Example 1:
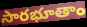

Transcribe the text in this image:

సారభూతాం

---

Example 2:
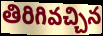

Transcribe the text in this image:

తిరిగివచ్చిన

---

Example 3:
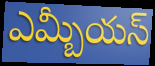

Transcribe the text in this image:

ఎమ్బీయస్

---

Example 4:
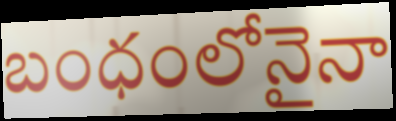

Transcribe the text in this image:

బంధంలోనైనా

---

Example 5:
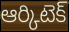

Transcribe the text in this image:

ఆర్కిటెక్